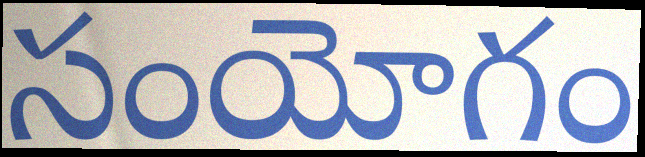
సంయోగం